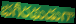
భగీరథుడుగా